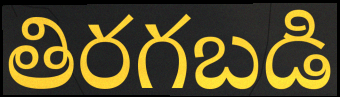
తిరగబడి